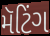
મૅટિંગ